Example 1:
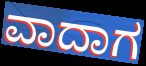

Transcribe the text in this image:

ವಾದಾಗ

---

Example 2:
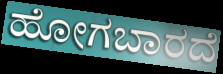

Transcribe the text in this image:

ಹೋಗಬಾರದೆ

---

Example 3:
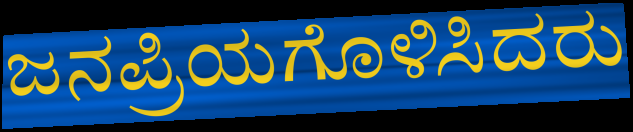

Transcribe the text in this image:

ಜನಪ್ರಿಯಗೊಳಿಸಿದರು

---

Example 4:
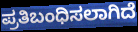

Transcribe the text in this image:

ಪ್ರತಿಬಂಧಿಸಲಾಗಿದೆ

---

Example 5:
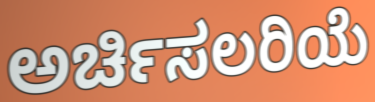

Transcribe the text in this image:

ಅರ್ಚಿಸಲರಿಯೆ